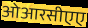
ओआरसीएए